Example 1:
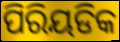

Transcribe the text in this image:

ପିରିୟଡିକ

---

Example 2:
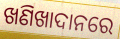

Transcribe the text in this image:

ଖଣିଖାଦାନରେ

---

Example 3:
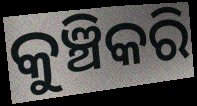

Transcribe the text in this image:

କୁଞ୍ଚିକରି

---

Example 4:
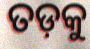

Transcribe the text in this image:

ତଡ଼କୁ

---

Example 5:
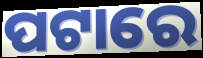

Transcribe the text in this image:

ପଟାରେ